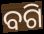
ବଗି